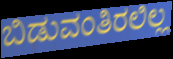
ಬಿಡುವಂತಿರಲಿಲ್ಲ